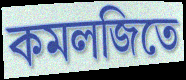
কমলজিতে